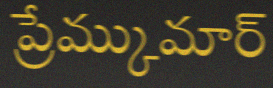
ప్రేమ్కుమార్